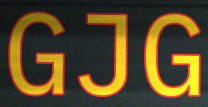
GJG